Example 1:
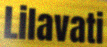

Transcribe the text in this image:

Lilavati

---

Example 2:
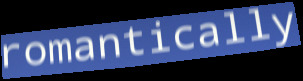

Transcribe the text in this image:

romantically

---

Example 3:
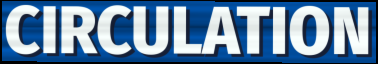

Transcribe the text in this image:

CIRCULATION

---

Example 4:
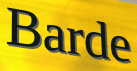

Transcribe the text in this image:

Barde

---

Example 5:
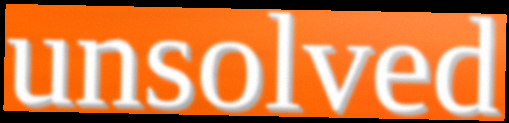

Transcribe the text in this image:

unsolved